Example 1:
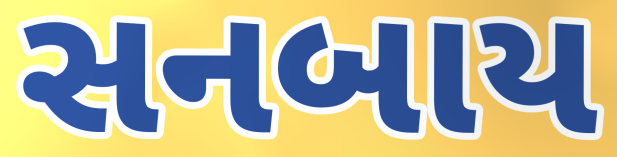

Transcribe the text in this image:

સનબાય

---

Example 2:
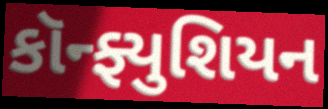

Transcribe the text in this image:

કૉન્ફ્યુશિયન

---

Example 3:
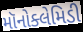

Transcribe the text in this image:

મૉનોક્લેમિડી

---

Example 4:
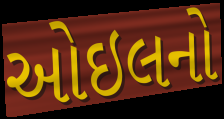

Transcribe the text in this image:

ઓઇલનો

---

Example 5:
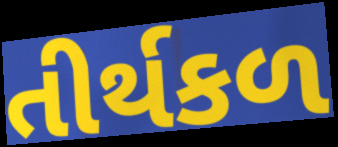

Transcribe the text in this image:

તીર્થકળ